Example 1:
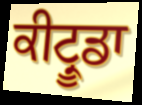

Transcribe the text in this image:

ਕੀਟ੍ਰੂਡਾ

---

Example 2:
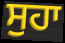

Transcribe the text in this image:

ਸੁਹਾ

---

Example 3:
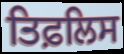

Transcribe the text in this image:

ਤਿਫ਼ਲਿਸ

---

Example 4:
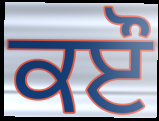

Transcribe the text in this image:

ਕੲੌ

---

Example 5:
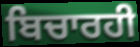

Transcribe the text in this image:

ਬਿਚਾਰਹੀ